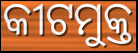
କୀଟମୁକ୍ତ